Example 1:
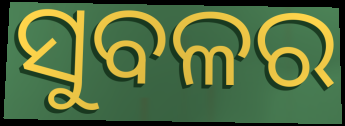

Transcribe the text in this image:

ସୁବଳର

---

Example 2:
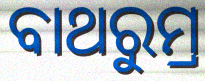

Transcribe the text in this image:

ବାଥରୁମ୍ର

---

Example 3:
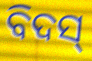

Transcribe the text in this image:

ବିଦସ୍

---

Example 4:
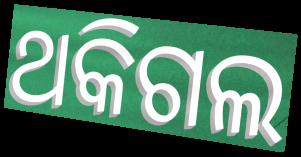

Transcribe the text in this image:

ଥକିଗଲ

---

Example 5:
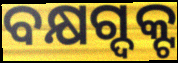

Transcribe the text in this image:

ବକ୍ଷଗ୍ଦକ୍ଟ